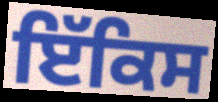
ਇੱਕਿਸ